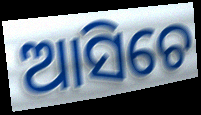
ଆସିଚେ